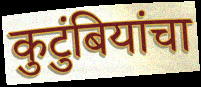
कुटुंबियांचा